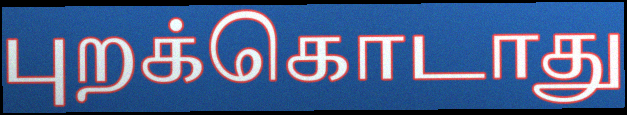
புறக்கொடாது